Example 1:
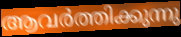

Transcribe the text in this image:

ആവർത്തിക്കുന്നു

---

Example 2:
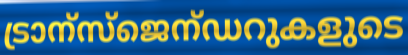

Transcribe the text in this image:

ട്രാന്സ്ജെന്ഡറുകളുടെ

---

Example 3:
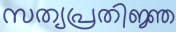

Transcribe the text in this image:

സത്യപ്രതിജ്ഞ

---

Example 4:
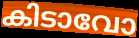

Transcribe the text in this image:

കിടാവോ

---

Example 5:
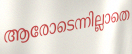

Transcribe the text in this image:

ആരോടെന്നില്ലാതെ